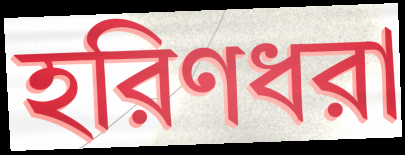
হরিণধরা